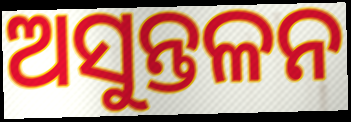
ଅସୁନ୍ତଳନ